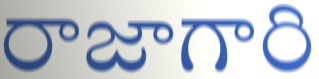
రాజాగారి